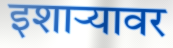
इशाऱ्यावर